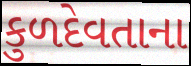
કુળદેવતાના